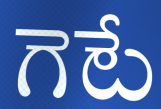
గెటే